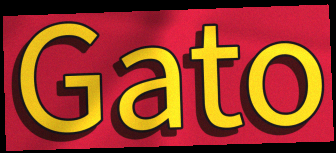
Gato